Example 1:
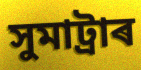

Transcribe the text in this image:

সুমাট্ৰাৰ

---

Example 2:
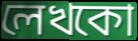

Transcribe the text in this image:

লেখকো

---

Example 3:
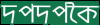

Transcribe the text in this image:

দপদপকৈ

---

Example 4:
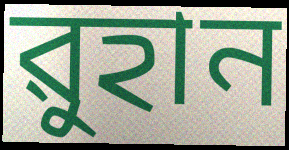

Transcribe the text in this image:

ৱুহান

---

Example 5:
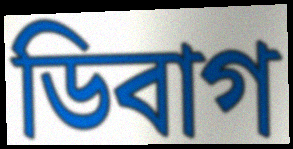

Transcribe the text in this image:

ডিবাগ